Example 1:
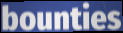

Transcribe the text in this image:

bounties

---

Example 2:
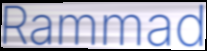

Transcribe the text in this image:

Rammad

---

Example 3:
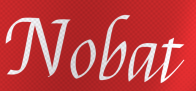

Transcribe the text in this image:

Nobat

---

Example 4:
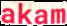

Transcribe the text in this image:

akam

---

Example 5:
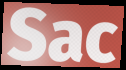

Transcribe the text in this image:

Sac